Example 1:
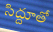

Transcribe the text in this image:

సిద్దూతో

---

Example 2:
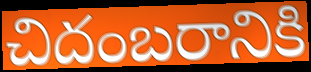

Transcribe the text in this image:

చిదంబరానికి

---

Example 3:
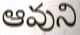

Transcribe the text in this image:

ఆవుని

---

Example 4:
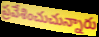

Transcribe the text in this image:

ప్రవేశించుచున్నారు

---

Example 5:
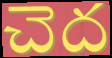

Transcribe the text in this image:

చెద